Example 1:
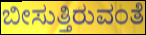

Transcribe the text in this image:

ಬೀಸುತ್ತಿರುವಂತೆ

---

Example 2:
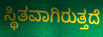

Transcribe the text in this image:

ಸ್ಥಿತವಾಗಿರುತ್ತದೆ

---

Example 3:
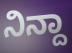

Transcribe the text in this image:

ನಿನ್ದಾ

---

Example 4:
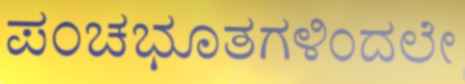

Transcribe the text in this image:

ಪಂಚಭೂತಗಳಿಂದಲೇ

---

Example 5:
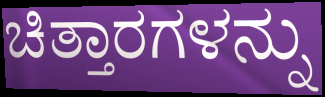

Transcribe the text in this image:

ಚಿತ್ತಾರಗಳನ್ನು